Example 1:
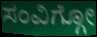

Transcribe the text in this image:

ಸಂವಿಗ್ಗೋ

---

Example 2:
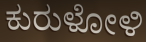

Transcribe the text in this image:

ಕುರುಳೋಳಿ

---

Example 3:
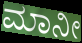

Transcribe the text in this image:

ಮಾನೀ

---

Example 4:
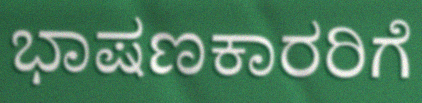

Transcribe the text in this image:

ಭಾಷಣಕಾರರಿಗೆ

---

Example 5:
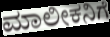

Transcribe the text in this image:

ಮಾಲೀಕನಿಗೆ